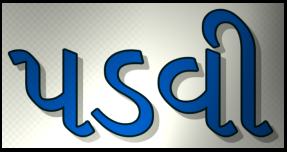
પડવી